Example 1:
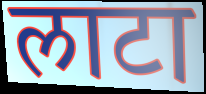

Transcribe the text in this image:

लाटा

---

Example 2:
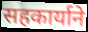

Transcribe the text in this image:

सहकार्याने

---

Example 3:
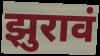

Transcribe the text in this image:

झुरावं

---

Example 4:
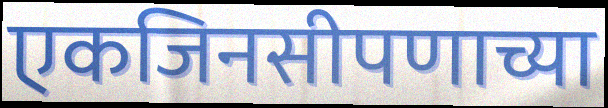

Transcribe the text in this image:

एकजिनसीपणाच्या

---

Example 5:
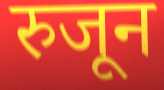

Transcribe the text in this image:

रुजून